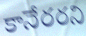
కానేరరని